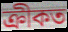
ক্ৰীকত